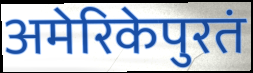
अमेरिकेपुरतं